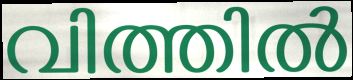
വിത്തിൽ